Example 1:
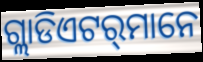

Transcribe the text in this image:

ଗ୍ଲାଡିଏଟର୍‍ମାନେ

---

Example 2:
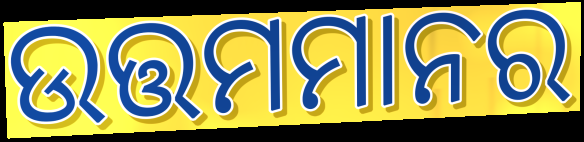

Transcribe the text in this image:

ଉତ୍ତମମାନର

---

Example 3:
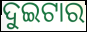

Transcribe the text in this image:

ଦୁଇଟାର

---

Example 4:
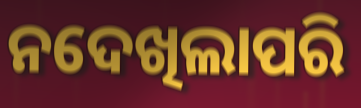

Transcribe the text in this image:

ନଦେଖିଲାପରି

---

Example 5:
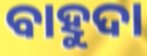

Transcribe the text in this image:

ବାହୁଦା